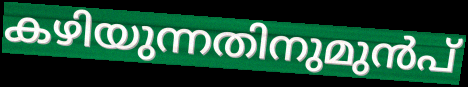
കഴിയുന്നതിനുമുൻപ്